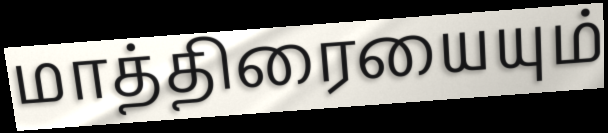
மாத்திரையையும்